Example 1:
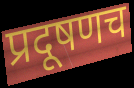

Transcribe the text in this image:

प्रदूषणच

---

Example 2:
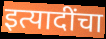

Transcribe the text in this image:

इत्यादींचा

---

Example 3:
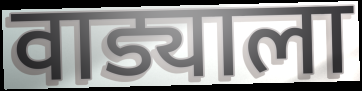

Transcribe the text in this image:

वाड्याला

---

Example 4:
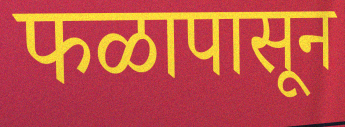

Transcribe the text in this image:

फळापासून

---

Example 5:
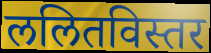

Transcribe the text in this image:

ललितविस्तर